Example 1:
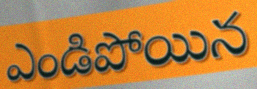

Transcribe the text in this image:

ఎండిపోయిన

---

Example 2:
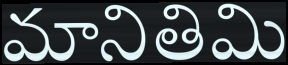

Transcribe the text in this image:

మానితిమి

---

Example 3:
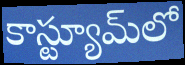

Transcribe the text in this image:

కాస్ట్యూమ్‌లో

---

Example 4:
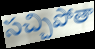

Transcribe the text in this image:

సచ్చిపోతా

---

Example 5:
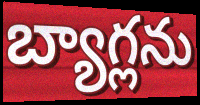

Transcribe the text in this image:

బ్యాగ్లను